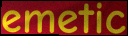
emetic